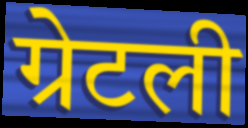
ग्रेटली